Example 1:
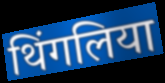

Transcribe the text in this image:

थिंगलिया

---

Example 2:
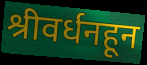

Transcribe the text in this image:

श्रीवर्धनहून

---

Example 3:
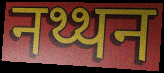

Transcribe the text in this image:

नथ्थन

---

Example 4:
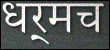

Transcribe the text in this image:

धर्मच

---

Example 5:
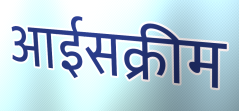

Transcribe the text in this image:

आईसक्रीम